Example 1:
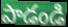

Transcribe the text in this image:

పాడండి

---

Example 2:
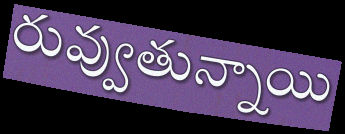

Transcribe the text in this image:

రువ్వుతున్నాయి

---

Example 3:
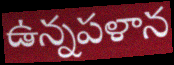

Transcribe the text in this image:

ఉన్నపళాన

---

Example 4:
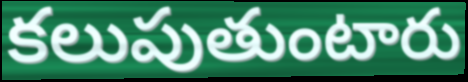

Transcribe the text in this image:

కలుపుతుంటారు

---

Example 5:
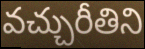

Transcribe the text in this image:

వచ్చురీతిని